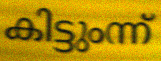
കിട്ടുംന്ന്